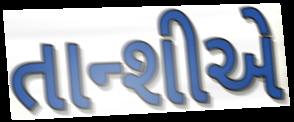
તાન્શીએ